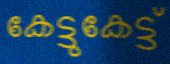
കേട്ടുകേട്ട്